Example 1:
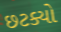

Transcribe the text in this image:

છટક્યો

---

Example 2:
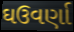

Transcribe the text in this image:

ઘઉવર્ણા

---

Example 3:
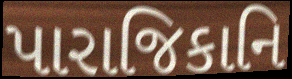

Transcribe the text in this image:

પારાજિકાનિ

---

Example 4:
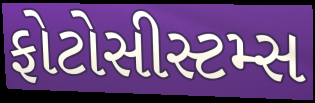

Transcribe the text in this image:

ફોટોસીસ્ટમ્સ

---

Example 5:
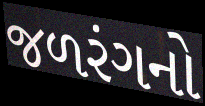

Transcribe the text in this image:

જળરંગનો